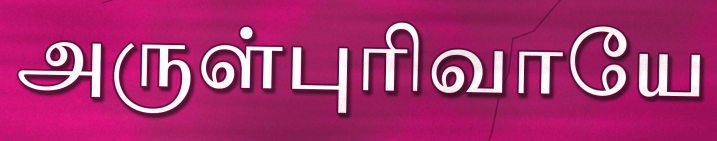
அருள்புரிவாயே